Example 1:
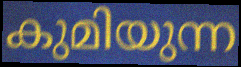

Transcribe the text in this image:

കുമിയുന്ന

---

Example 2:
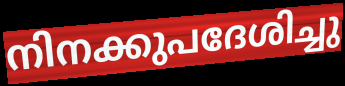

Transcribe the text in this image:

നിനക്കുപദേശിച്ചു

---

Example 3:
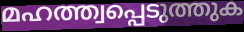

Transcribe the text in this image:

മഹത്ത്വപ്പെടുത്തുക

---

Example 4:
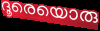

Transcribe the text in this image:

ദൂരെയൊരു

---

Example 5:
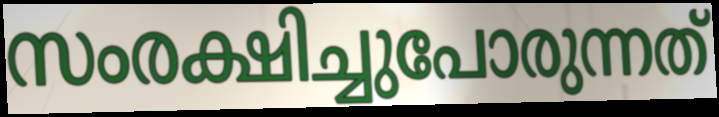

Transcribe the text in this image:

സംരക്ഷിച്ചുപോരുന്നത്